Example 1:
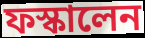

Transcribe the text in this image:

ফস্কালেন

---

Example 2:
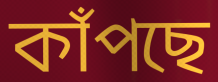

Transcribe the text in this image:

কাঁপছে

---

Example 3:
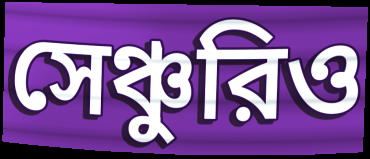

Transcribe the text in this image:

সেঞ্চুরিও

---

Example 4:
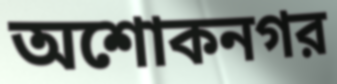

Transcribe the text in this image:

অশোকনগর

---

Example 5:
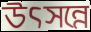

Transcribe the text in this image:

উৎসন্নে